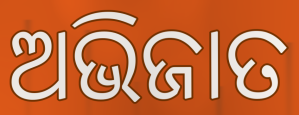
ଅଭିଜାତ